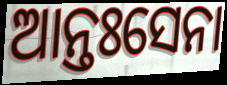
ଆନ୍ତଃସେନା